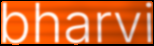
bharvi